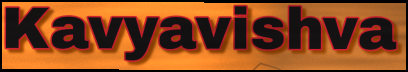
Kavyavishva